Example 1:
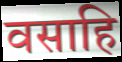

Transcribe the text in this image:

वसाहि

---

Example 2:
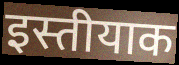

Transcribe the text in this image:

इस्तीयाक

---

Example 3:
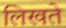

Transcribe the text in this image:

लिखते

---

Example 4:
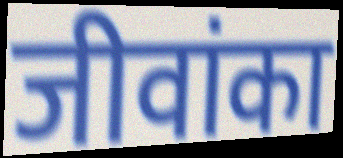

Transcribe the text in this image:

जीवांका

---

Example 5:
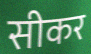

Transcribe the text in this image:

सीकर